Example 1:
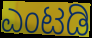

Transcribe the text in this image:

ಎಂಟಡಿ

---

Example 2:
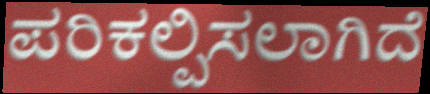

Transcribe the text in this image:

ಪರಿಕಲ್ಪಿಸಲಾಗಿದೆ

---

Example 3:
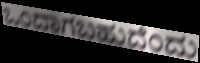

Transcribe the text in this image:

ಒಂದಾಗಬಹುದೆಂದು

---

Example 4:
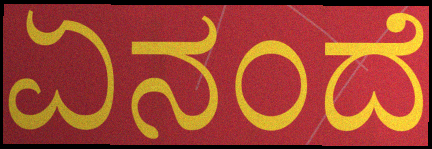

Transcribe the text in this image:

ಏನಂದೆ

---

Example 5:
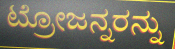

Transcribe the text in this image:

ಟ್ರೋಜನ್ನರನ್ನು